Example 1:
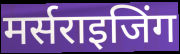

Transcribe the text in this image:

मर्सराइजिंग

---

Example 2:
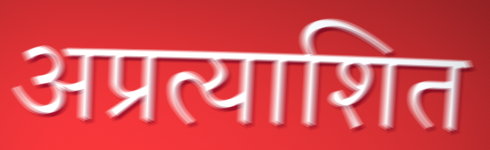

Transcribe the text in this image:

अप्रत्याशित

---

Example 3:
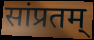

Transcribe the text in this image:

सांप्रतम्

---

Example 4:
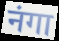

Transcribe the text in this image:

नंगा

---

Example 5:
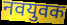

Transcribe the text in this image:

नवयुवक